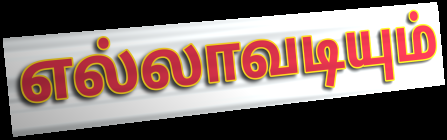
எல்லாவடியும்